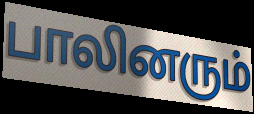
பாலினரும்